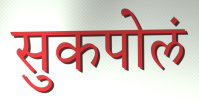
सुकपोलं